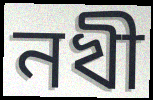
নখী